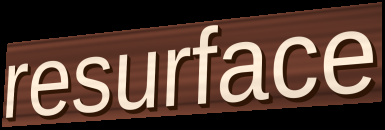
resurface